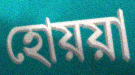
হোয়য়া